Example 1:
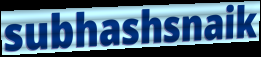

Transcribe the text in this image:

subhashsnaik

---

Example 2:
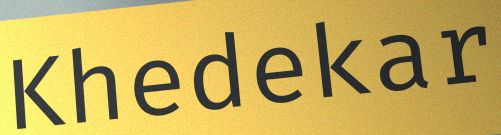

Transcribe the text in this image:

Khedekar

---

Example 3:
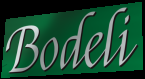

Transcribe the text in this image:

Bodeli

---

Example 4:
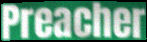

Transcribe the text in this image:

Preacher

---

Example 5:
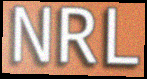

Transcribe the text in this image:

NRL